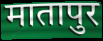
मातापुर